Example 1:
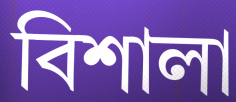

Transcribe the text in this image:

বিশালা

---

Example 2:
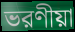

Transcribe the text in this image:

ভরণীয়া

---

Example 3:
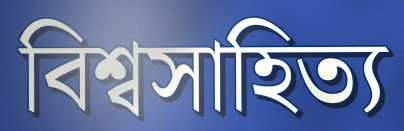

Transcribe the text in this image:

বিশ্বসাহিত্য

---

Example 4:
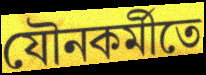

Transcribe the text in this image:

যৌনকর্মীতে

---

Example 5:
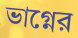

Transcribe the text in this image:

ভাগ্নের